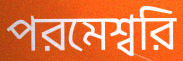
পরমেশ্বরি